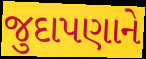
જુદાપણાને